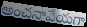
అంచనావేయగా